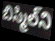
బిస్మిల్‌ని